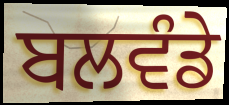
ਬਲਵੰਡੇ